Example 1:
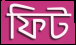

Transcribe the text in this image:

ফিট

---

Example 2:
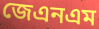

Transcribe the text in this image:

জেএনএম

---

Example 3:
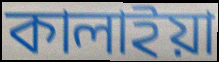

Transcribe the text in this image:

কালাইয়া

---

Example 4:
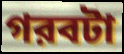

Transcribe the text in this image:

গরবটা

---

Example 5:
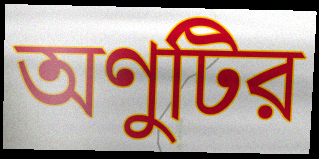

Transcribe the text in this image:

অণুটির